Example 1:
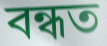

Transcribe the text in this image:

বন্ধত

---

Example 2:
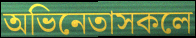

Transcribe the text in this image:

অভিনেতাসকলে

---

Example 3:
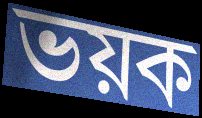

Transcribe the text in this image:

ভয়ক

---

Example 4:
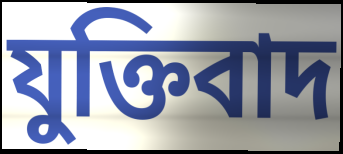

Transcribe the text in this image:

যুক্তিবাদ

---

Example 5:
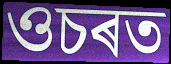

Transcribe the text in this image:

ওচৰত